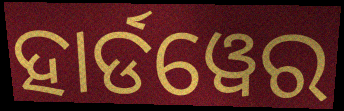
ହାର୍ଡୱେର